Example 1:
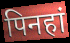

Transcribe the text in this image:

पिनहां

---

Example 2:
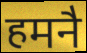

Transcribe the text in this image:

हमनै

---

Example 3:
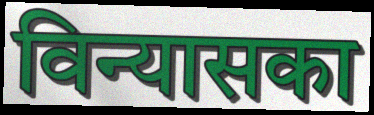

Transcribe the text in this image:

विन्यासका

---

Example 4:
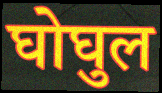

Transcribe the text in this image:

घोघुल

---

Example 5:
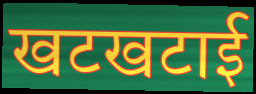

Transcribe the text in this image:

खटखटाई